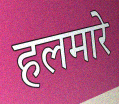
हलमारे